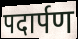
पदार्पण